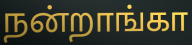
நன்றாங்கா